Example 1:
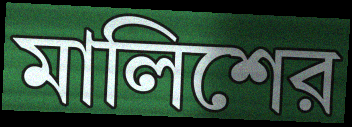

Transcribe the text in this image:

মালিশের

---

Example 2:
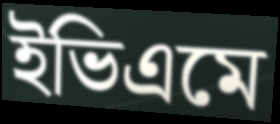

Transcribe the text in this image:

ইভিএমে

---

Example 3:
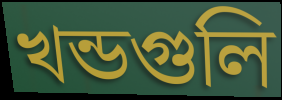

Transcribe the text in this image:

খন্ডগুলি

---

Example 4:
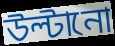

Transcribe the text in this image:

উল্টানো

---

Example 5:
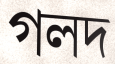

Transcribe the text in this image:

গলদ